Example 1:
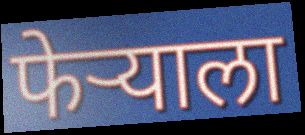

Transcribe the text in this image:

फेऱ्याला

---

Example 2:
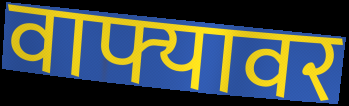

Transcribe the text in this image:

वाफ्यावर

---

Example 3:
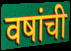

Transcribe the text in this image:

वषांची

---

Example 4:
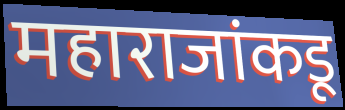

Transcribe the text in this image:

महाराजांकडू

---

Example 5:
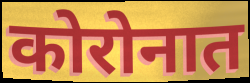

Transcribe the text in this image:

कोरोनात